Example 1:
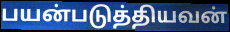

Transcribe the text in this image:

பயன்படுத்தியவன்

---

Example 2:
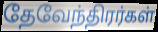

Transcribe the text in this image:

தேவேந்திரர்கள்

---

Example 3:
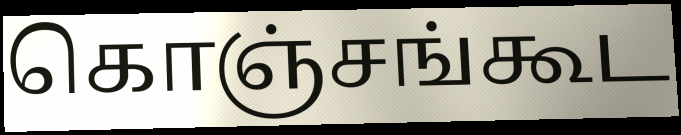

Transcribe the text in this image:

கொஞ்சங்கூட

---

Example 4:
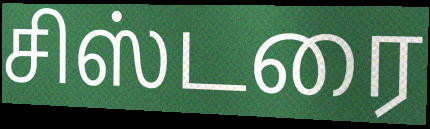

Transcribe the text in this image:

சிஸ்டரை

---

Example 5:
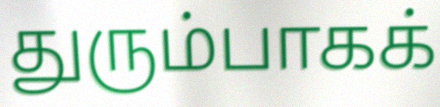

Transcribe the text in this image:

துரும்பாகக்